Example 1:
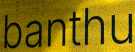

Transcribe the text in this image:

banthu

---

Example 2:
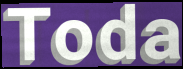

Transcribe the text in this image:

Toda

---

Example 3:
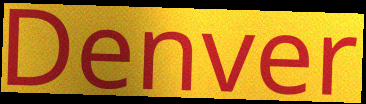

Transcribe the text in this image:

Denver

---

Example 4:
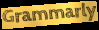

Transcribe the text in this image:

Grammarly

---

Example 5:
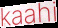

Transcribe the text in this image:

kaahi